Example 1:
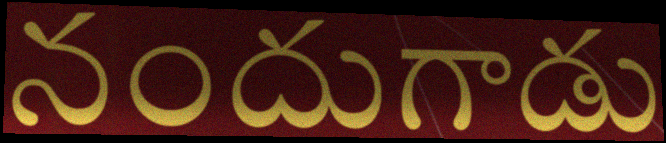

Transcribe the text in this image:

నందుగాడు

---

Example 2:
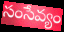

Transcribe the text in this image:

సంసేవ్యం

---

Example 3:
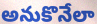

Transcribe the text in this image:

అనుకొనేలా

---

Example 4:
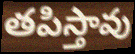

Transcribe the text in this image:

తపిస్తావు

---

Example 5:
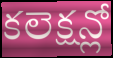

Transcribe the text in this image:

కలెక్షన్లో